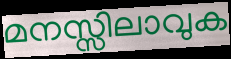
മനസ്സിലാവുക